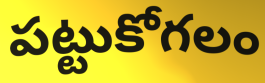
పట్టుకోగలం